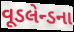
વૂડલેન્ડના